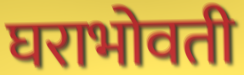
घराभोवती